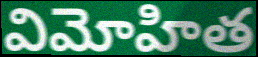
విమోహిత